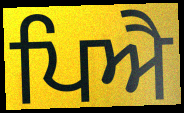
ਪਿਐ